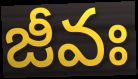
జీవః